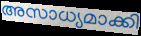
അസാധ്യമാക്കി